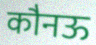
कौनऊ